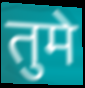
तुमे